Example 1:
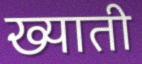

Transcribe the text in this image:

ख्याती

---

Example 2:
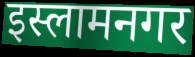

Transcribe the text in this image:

इस्लामनगर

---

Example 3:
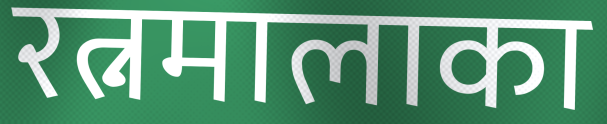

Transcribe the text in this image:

रत्नमालाका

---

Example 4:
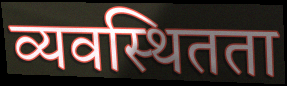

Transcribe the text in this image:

व्यवस्थितता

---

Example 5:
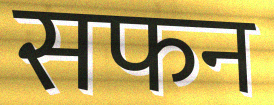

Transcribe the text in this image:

सफन